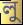
লু